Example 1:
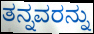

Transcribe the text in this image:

ತನ್ನವರನ್ನು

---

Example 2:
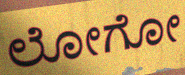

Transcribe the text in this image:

ಲೋಗೋ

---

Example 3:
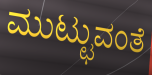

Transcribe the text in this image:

ಮುಟ್ಟುವಂತೆ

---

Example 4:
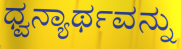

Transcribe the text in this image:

ಧ್ವನ್ಯಾರ್ಥವನ್ನು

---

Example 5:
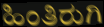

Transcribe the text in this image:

ಹಿಂತಿರುಗಿ